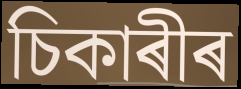
চিকাৰীৰ